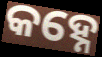
କହ୍ନେ